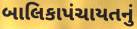
બાલિકાપંચાયતનું